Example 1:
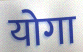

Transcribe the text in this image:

योगा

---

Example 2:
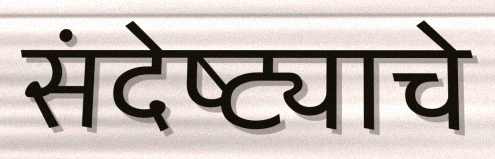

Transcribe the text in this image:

संदेष्ट्याचे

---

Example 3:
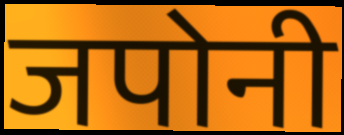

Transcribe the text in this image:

जपोनी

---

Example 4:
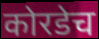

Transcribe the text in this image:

कोरडेच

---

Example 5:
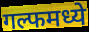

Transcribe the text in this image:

गल्फमध्ये